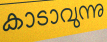
കാടാവുന്നു